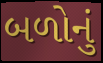
બળોનું